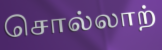
சொல்லாற்